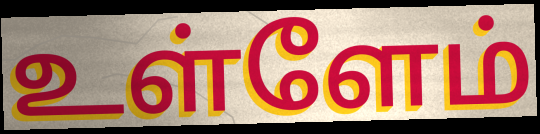
உள்ளேம்